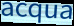
acqua